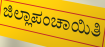
ಜಿಲ್ಲಾಪಂಚಾಯಿತಿ